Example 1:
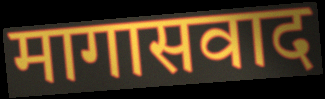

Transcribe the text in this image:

मागासवाद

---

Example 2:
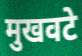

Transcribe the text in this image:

मुखवटे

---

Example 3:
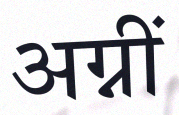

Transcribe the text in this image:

अग्नीं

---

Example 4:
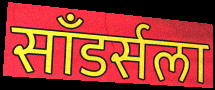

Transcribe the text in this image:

साँडर्सला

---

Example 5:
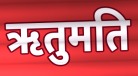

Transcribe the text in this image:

ऋतुमति